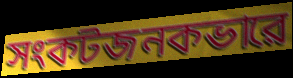
সংকটজনকভাৱে